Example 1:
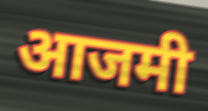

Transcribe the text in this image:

आजमी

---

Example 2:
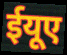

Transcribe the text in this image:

ईयूए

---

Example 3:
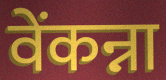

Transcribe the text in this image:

वेंकन्ना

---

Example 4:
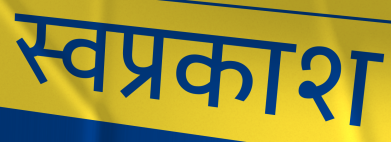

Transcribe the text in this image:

स्वप्रकाश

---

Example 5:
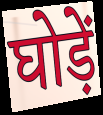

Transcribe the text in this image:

घोड़ें